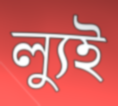
ল্যুই